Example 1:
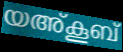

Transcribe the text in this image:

യഅ്കൂബ്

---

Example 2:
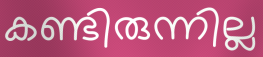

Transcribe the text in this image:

കണ്ടിരുന്നില്ല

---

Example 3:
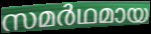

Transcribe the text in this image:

സമർഥമായ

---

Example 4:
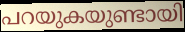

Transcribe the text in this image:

പറയുകയുണ്ടായി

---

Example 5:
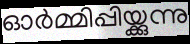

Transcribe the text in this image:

ഓർമ്മിപ്പിയ്ക്കുന്നു